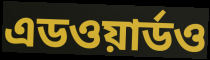
এডওয়ার্ডও